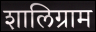
शालिग्राम